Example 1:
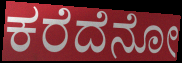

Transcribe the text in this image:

ಕರೆದೆನೋ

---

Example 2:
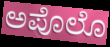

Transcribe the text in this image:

ಅಪೊಲೊ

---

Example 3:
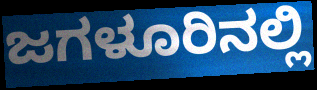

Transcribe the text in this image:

ಜಗಳೂರಿನಲ್ಲಿ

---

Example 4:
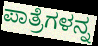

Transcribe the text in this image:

ಪಾತ್ರೆಗಳನ್ನ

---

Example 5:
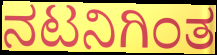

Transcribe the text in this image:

ನಟನಿಗಿಂತ